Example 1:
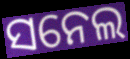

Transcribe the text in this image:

ସନେଲ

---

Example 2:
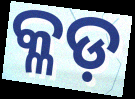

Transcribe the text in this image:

କ୍ଳଡ଼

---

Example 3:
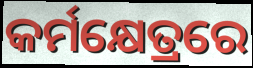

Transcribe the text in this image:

କର୍ମକ୍ଷେତ୍ରରେ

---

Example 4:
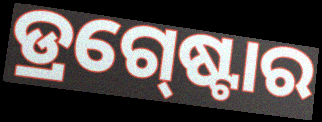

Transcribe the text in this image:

ଡ୍ରଗ୍‍ଷ୍ଟୋର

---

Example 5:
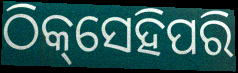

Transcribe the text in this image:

ଠିକ୍‌ସେହିପରି